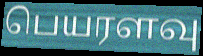
பெயரளவு